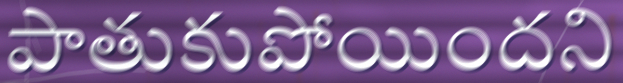
పాతుకుపోయిందని